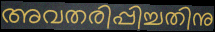
അവതരിപ്പിച്ചതിനു